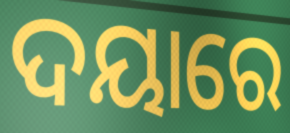
ଦୟାରେ